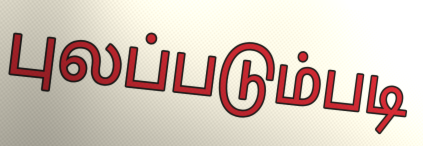
புலப்படும்படி